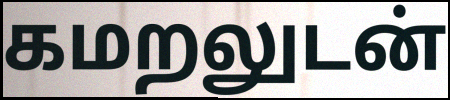
கமறலுடன்